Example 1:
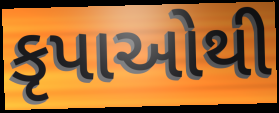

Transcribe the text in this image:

કૃપાઓથી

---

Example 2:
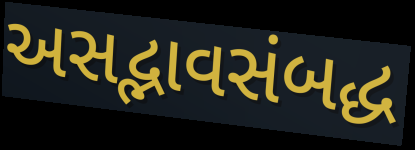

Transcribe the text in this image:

અસદ્ભાવસંબદ્ધ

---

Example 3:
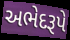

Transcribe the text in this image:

અભેદરૂપે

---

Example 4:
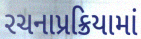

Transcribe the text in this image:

રચનાપ્રક્રિયામાં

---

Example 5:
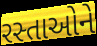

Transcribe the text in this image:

રસ્તાઓને